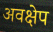
अवक्षेप